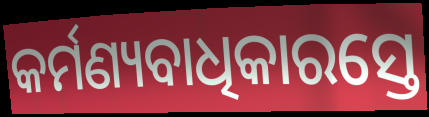
କର୍ମଣ୍ୟବାଧିକାରସ୍ତେ